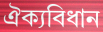
ঐক্যবিধান